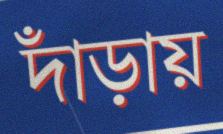
দাঁড়ায়